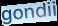
gondii